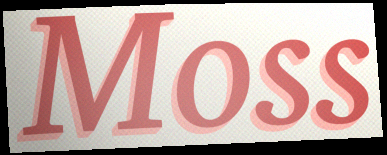
Moss